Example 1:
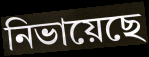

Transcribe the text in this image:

নিভায়েছে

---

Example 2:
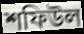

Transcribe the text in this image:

শফিউল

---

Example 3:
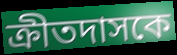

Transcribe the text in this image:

ক্রীতদাসকে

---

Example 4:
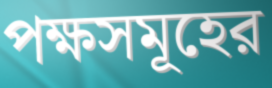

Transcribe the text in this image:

পক্ষসমূহের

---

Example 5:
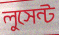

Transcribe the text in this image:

লুসেন্ট